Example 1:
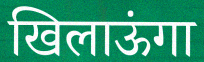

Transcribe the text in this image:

खिलाऊंगा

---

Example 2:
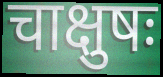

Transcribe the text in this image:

चाक्षुषः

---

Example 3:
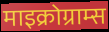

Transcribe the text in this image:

माइक्रोग्राम्स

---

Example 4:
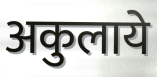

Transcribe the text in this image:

अकुलाये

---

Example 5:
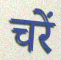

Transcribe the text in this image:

चरें